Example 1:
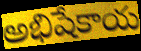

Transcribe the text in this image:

అభిషేకాయ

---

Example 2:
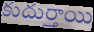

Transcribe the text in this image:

కుదుర్తాయి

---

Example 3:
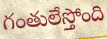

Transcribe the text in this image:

గంతులేస్తోంది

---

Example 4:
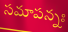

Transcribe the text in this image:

సమాపన్నః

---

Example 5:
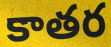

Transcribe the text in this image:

కాతర